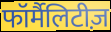
फॉर्मैलिटीज़